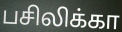
பசிலிக்கா